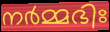
നർമ്മഭിഃ